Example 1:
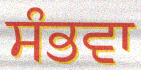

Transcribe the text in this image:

ਸੰਭਵਾ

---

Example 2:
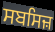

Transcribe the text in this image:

ਸਬਸਿਜ਼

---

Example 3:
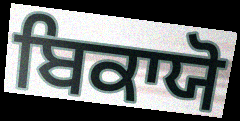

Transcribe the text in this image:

ਬਿਕਾਯੋ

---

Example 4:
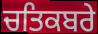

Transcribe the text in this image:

ਚਤਿਕਬਰੇ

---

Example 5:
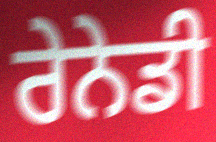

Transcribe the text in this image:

ਰੇਨੇਡੀ